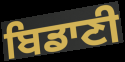
ਬਿਡਾਣੀ